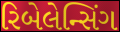
રિબેલેન્સિંગ